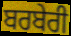
ਬਰਬੇਰੀ